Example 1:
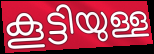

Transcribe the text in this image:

കൂട്ടിയുള്ള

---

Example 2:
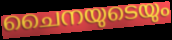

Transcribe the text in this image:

ചൈനയുടെയും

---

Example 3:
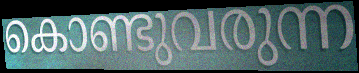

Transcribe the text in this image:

കൊണ്ടുവരുന്ന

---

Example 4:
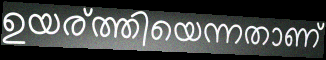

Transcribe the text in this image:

ഉയര്ത്തിയെന്നതാണ്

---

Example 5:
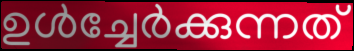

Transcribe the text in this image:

ഉൾച്ചേർക്കുന്നത്